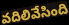
వదిలివేసింది